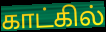
காட்கில்